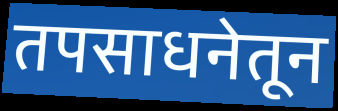
तपसाधनेतून